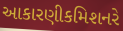
આકારણીકમિશનરે